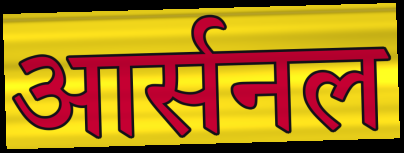
आर्सनल